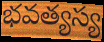
భవత్యస్య